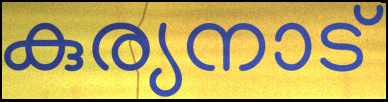
കുര്യനാട്